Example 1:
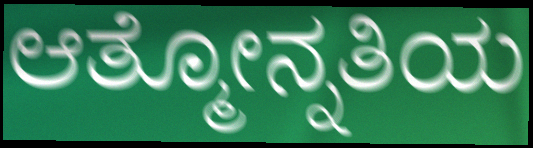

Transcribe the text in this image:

ಆತ್ಮೋನ್ನತಿಯ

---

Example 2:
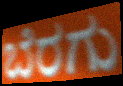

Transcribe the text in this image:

ಬೆರಗು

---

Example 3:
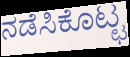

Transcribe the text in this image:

ನಡೆಸಿಕೊಟ್ಟ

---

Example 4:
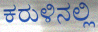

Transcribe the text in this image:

ಕರುಳಿನಲ್ಲಿ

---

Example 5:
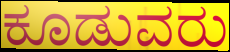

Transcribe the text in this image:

ಕೂಡುವರು